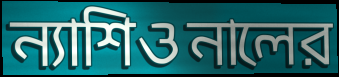
ন্যাশিওনালের